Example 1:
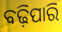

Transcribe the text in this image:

ବଢ଼ିପାରି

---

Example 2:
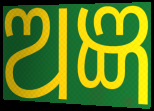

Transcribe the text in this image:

ଅଜ୍ଞ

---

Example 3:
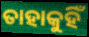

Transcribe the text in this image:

ତାହାକୁହିଁ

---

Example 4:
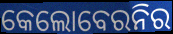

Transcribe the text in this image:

କେଲୋବେରନିର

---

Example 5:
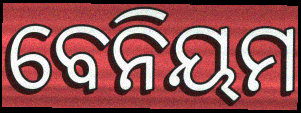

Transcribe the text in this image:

ବେନିୟମ